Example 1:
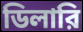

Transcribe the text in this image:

ডিলারি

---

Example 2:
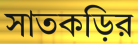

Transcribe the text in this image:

সাতকড়ির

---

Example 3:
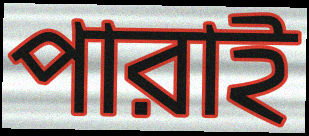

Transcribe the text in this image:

পারাই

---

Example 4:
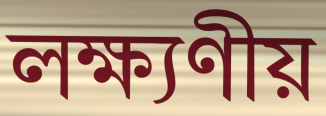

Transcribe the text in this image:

লক্ষ্যণীয়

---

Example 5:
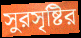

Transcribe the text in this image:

সুরসৃষ্টির